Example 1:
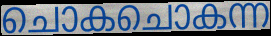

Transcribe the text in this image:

ചൊകചൊകന്ന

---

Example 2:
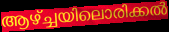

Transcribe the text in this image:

ആഴ്ച്ചയിലൊരിക്കൽ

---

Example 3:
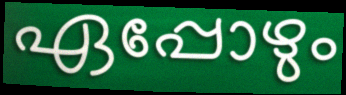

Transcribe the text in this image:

ഏപ്പോഴും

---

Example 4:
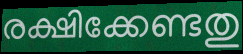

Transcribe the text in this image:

രക്ഷിക്കേണ്ടതു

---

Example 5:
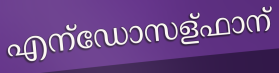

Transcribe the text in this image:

എന്ഡോസള്ഫാന്